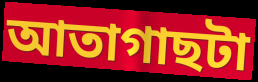
আতাগাছটা